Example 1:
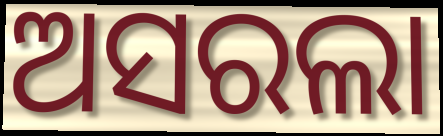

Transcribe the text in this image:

ଅସରଲା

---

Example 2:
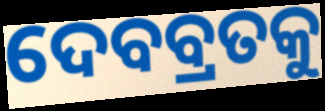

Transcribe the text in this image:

ଦେବବ୍ରତକୁ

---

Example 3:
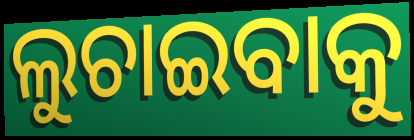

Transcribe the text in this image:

ଲୁଚାଇବାକୁ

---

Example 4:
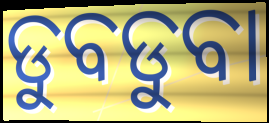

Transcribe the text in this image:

ଡୁବଡୁବା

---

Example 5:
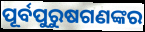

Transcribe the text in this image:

ପୂର୍ବପୁରୁଷଗଣଙ୍କର